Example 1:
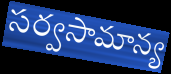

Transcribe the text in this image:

సర్వసామాన్య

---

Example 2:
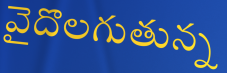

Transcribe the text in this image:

వైదొలగుతున్న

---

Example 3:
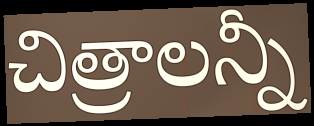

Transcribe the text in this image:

చిత్రాలన్నీ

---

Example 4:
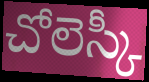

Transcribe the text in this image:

చోలెస్కీ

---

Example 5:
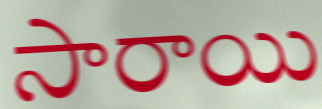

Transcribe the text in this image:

సారాయి